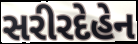
સરીરદેહેન